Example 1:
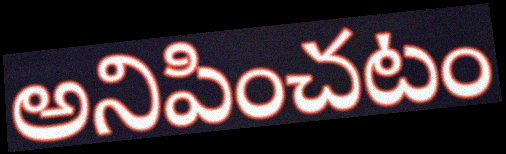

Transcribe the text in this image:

అనిపించటం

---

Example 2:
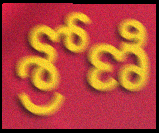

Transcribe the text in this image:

శ్రోణి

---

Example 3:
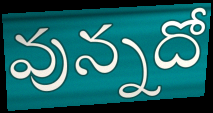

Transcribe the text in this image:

వున్నదో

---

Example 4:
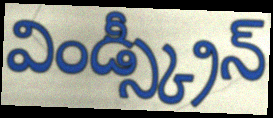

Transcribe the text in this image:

విండ్స్క్రీన్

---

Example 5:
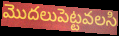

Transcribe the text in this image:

మొదలుపెట్టవలసి